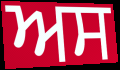
ਅਸ